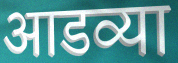
आडव्या